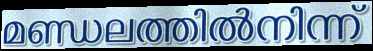
മണ്ഡലത്തിൽനിന്ന്